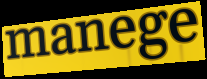
manege